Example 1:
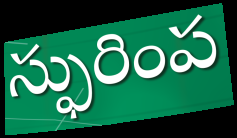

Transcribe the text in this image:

స్ఫురింప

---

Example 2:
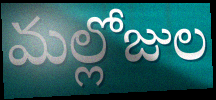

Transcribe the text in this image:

మల్లోజుల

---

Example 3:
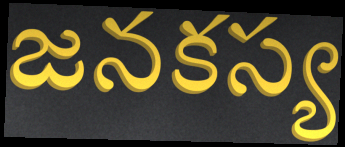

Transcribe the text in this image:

జనకస్య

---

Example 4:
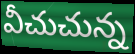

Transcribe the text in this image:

వీచుచున్న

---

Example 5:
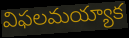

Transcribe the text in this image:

విఫలమయ్యాక